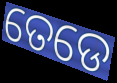
ତେଡେ